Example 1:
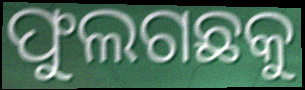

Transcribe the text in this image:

ଫୁଲଗଛକୁ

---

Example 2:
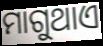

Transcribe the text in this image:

ମାଗୁଥାଏ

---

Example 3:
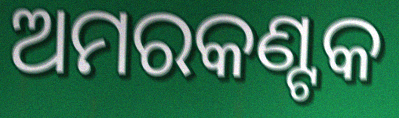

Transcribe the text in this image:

ଅମରକଣ୍ଟକ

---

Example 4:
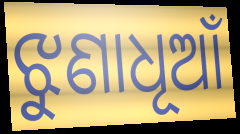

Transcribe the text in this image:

ଝୁଣାଧୂଆଁ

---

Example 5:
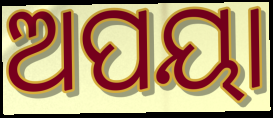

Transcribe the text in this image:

ଅପୟା